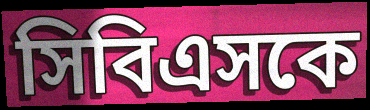
সিবিএসকে